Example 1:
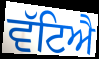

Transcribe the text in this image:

ਵੱਟਿਐ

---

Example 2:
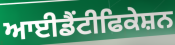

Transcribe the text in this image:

ਆਈਡੈਂਟੀਫਿਕੇਸ਼ਨ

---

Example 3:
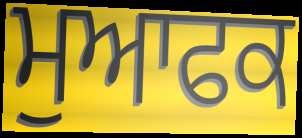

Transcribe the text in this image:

ਮੁਆਫਕ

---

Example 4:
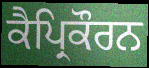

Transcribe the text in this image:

ਕੈਪ੍ਰਿਕੌਰਨ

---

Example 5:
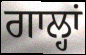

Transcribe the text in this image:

ਗਾਲ੍ਹਾਂ